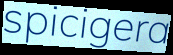
spicigera